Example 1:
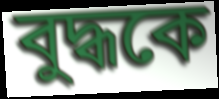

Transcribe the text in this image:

বুদ্ধকে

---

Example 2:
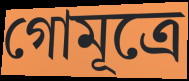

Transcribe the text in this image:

গোমূত্রে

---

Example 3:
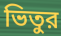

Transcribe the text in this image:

ভিতুর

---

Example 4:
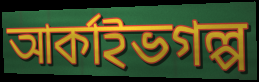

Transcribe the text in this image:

আর্কাইভগল্প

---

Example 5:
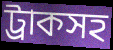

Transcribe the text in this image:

ট্রাকসহ